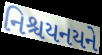
નિશ્ચયનયને